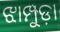
ଝାମ୍ପୁଡ଼ା